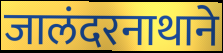
जालंदरनाथाने